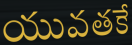
యువతకే